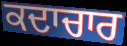
ਕਦਾਚਾਰ